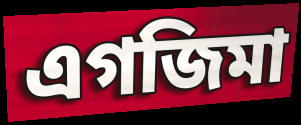
এগজিমা